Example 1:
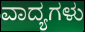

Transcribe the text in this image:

ವಾದ್ಯಗಳು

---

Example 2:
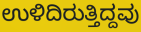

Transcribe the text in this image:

ಉಳಿದಿರುತ್ತಿದ್ದವು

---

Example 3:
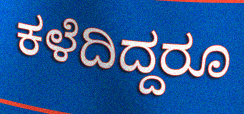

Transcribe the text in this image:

ಕಳೆದಿದ್ದರೂ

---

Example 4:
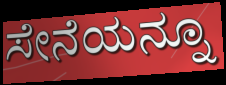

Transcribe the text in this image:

ಸೇನೆಯನ್ನೂ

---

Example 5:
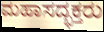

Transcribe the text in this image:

ಮಹಾಸದ್ಭಕ್ತರು